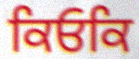
ਕਿਓਕਿ